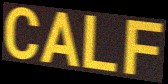
CALF